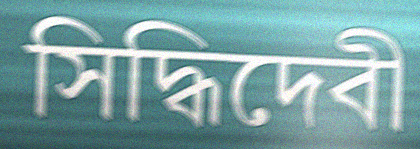
সিদ্ধিদেবী